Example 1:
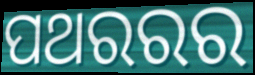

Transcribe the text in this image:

ପଥରରର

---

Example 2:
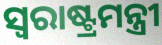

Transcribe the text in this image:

ସ୍ବରାଷ୍ଟ୍ରମନ୍ତ୍ରୀ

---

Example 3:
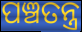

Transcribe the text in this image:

ପଞ୍ଚତନ୍ତ୍ର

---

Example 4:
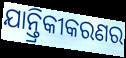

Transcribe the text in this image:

ଯାନ୍ତ୍ରିକୀକରଣର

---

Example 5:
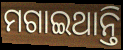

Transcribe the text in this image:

ମଗାଇଥାନ୍ତି